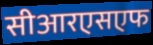
सीआरएसएफ